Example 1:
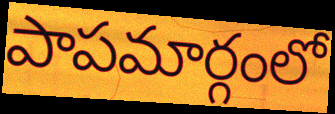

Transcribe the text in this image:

పాపమార్గంలో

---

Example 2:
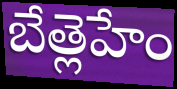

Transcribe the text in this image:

బేత్లెహేం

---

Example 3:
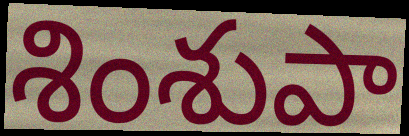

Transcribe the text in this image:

శింశుపా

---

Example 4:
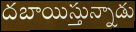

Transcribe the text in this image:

దబాయిస్తున్నాడు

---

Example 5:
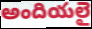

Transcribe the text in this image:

అందియలై